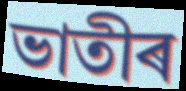
ভাতীৰ